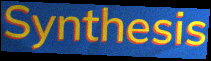
Synthesis